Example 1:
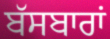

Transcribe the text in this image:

ਬੱਸਬਾਰਾਂ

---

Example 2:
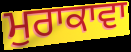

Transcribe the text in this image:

ਮੁਰਾਕਾਵਾ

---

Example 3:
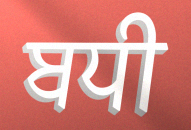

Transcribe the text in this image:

ਬਧੀ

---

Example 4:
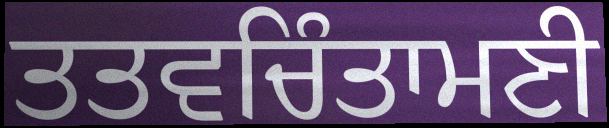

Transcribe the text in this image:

ਤਤਵਚਿੰਤਾਮਣੀ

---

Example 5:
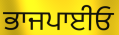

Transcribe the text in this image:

ਭਾਜਪਾਈਓ